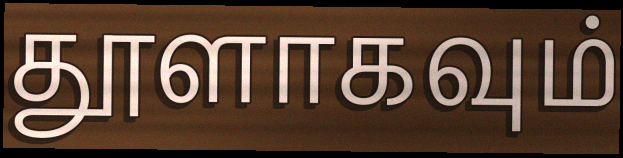
தூளாகவும்